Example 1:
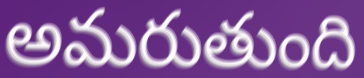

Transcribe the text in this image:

అమరుతుంది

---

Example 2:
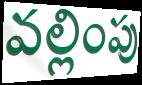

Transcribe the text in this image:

వల్లింపు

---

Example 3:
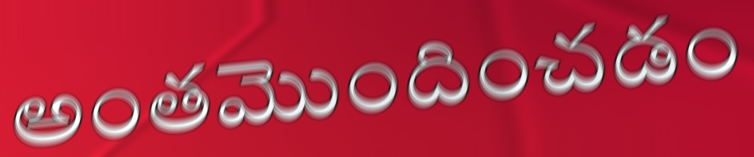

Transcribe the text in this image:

అంతమొందించడం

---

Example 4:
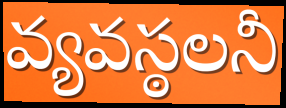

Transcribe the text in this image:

వ్యవస్ఠలనీ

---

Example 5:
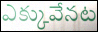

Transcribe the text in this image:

ఎక్కువేనట